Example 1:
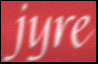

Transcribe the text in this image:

jyre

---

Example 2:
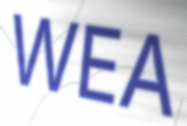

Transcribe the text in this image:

WEA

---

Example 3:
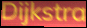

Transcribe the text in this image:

Dijkstra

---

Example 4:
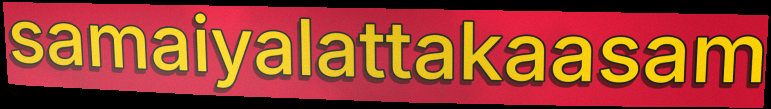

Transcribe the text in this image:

samaiyalattakaasam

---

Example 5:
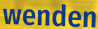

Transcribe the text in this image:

wenden